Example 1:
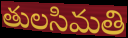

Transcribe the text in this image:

తులసిమతి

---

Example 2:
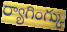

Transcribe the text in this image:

ర్యాగింగ్కు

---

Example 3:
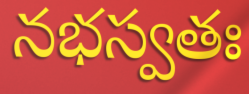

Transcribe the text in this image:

నభస్వతః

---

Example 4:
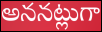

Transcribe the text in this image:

అననట్లుగా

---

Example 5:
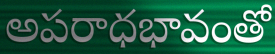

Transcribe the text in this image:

అపరాధభావంతో